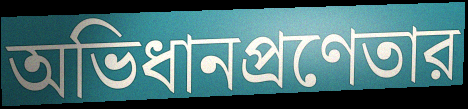
অভিধানপ্রণেতার